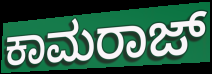
ಕಾಮರಾಜ್